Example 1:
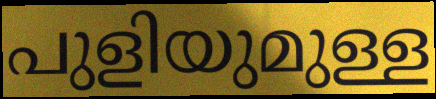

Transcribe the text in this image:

പുളിയുമുള്ള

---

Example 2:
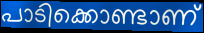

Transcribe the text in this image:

പാടിക്കൊണ്ടാണ്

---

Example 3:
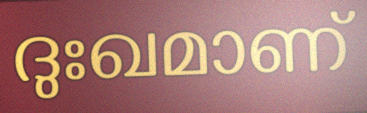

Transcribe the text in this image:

ദുഃഖമാണ്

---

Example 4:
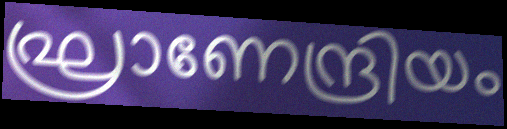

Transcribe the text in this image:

ഘ്രാണേന്ദ്രിയം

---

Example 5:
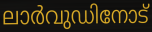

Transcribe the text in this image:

ലാർവുഡിനോട്